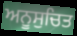
ਅਨੂਸੁਚਿਤ